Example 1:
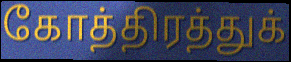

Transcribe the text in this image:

கோத்திரத்துக்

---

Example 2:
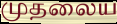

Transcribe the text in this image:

முதலைய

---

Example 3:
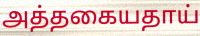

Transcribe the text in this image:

அத்தகையதாய்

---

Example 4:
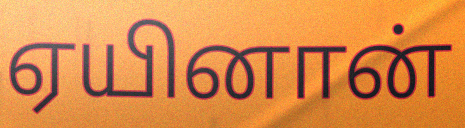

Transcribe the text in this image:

ஏயினான்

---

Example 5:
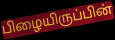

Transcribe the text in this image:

பிழையிருப்பின்